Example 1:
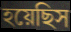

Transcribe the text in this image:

হয়েছিস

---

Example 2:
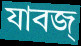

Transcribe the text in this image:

যাবজ্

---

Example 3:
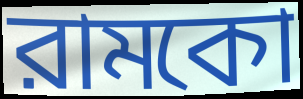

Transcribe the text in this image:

রামকো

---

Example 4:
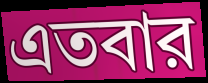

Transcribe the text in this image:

এতবার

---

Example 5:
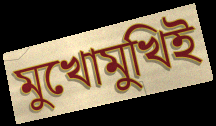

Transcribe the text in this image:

মুখোমুখিই